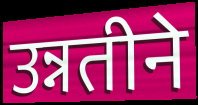
उन्नतीने